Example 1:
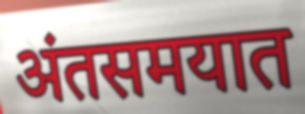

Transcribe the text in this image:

अंतसमयात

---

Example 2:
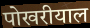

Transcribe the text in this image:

पोखरीयाल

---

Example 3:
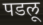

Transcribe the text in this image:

पडलू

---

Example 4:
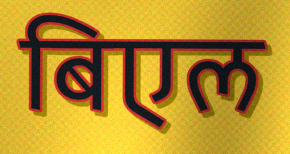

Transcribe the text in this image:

बिएल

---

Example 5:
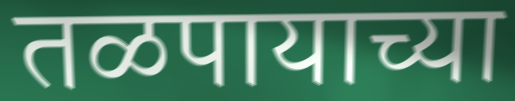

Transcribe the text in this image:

तळपायाच्या